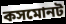
কসমোনট